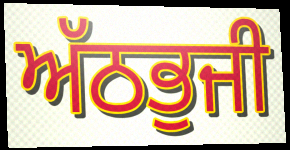
ਅੱਠਭੁਜੀ